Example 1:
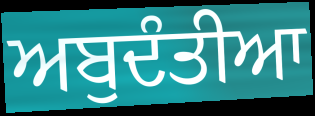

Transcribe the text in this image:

ਅਬੁਦੰਤੀਆ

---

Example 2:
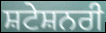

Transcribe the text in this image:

ਸ਼ਟੇਸ਼ਨਰੀ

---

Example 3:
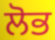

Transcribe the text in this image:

ਲੋਭ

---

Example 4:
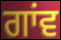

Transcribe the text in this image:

ਗਾਂਵ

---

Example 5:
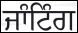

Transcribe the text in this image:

ਜਾੰਟਿੰਗ